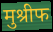
मुश्रीफ